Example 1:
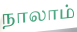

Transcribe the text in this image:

நாலாம்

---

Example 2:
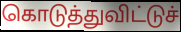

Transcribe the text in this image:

கொடுத்துவிட்டுச்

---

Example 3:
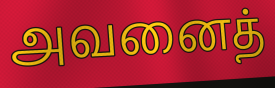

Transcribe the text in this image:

அவனைத்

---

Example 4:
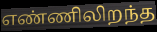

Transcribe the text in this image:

எண்ணிலிறந்த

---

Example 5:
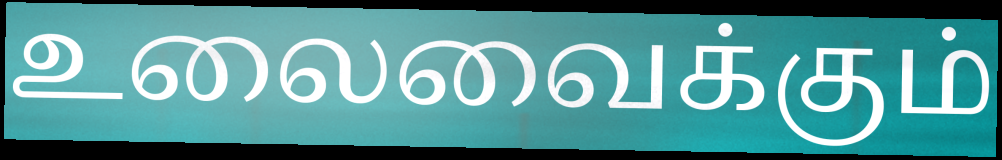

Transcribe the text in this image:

உலைவைக்கும்